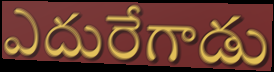
ఎదురేగాడు